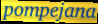
pompejana